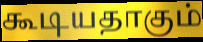
கூடியதாகும்